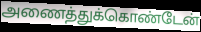
அணைத்துக்கொண்டேன்